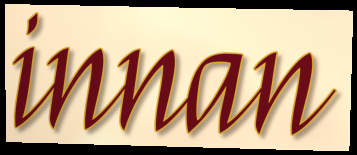
innan